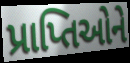
પ્રાપ્તિઓને